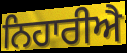
ਨਿਹਾਰੀਐ